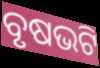
ବୃଷଭଟି